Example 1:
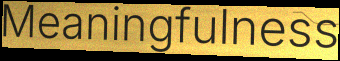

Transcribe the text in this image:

Meaningfulness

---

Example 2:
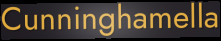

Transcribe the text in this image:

Cunninghamella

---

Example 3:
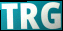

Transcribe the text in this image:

TRG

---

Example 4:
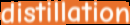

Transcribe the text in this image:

distillation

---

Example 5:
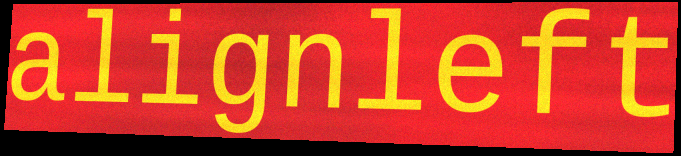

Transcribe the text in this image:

alignleft